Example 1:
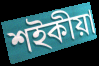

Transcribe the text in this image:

শইকীয়া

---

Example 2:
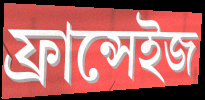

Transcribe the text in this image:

ফ্ৰান্সেইজ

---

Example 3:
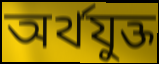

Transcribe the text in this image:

অৰ্থযুক্ত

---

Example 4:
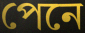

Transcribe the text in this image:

পেনে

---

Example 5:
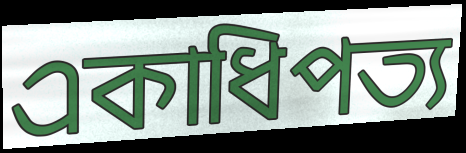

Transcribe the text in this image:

একাধিপত্য